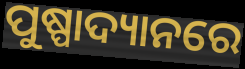
ପୁଷ୍ପାଦ୍ୟାନରେ